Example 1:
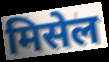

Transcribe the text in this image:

मिसेल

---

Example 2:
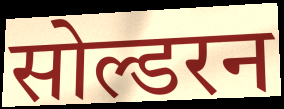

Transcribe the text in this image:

सोल्डरन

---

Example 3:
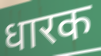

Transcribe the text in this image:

धारक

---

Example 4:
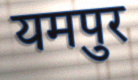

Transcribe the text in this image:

यमपुर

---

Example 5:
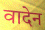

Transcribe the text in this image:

वादेन